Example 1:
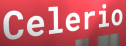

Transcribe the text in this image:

Celerio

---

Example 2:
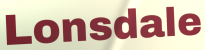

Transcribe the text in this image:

Lonsdale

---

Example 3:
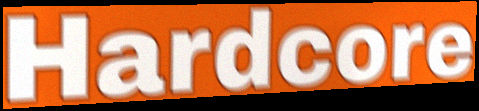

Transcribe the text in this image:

Hardcore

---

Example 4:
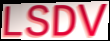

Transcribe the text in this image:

LSDV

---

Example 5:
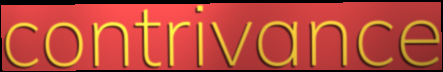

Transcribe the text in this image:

contrivance